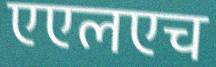
एएलएच